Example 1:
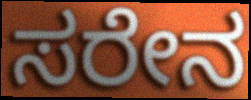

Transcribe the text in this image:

ಸರೇನ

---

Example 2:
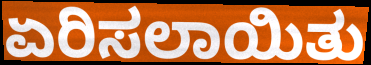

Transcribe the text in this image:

ಏರಿಸಲಾಯಿತು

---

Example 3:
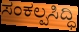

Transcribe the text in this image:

ಸಂಕಲ್ಪಸಿದ್ಧಿ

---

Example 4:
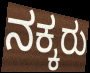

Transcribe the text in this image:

ನಕ್ಕರು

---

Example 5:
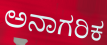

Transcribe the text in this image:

ಅನಾಗರಿಕ